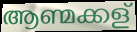
ആണ്മക്കള്